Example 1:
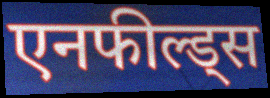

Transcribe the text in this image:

एनफील्ड्स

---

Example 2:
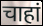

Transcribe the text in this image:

चाहां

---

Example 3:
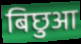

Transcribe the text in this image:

बिछुआ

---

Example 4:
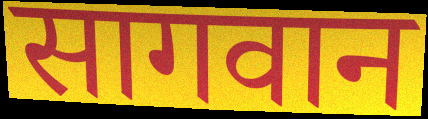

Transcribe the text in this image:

सागवान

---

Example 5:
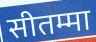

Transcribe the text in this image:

सीतम्मा